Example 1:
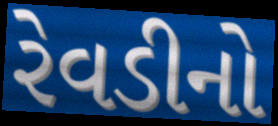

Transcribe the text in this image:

રેવડીનો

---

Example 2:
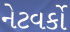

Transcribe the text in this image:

નેટવર્કો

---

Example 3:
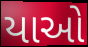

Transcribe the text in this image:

યાઓ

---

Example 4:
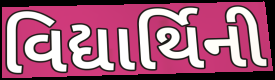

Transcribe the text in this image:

વિદ્યાર્થિની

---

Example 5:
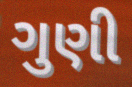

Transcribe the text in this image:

ગુણી